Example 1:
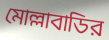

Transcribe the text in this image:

মোল্লাবাডির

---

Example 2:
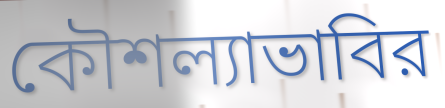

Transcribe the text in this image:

কৌশল্যাভাবির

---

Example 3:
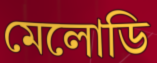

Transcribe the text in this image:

মেলোডি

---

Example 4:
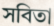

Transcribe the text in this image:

সবিতা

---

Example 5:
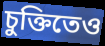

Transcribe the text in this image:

চুক্তিতেও